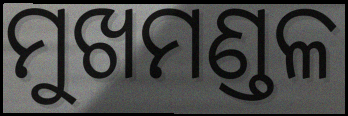
ମୁଖମଣ୍ଡଳ